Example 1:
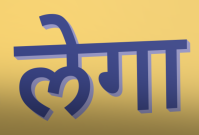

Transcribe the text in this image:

लेगा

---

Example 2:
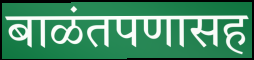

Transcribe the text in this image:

बाळंतपणासह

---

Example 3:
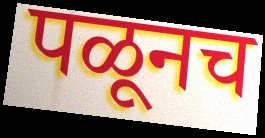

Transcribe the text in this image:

पळूनच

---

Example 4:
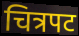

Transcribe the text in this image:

चित्रपट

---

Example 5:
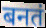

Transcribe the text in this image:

बनतं